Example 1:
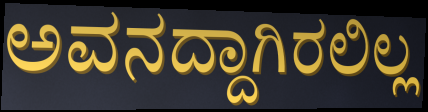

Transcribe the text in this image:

ಅವನದ್ದಾಗಿರಲಿಲ್ಲ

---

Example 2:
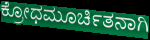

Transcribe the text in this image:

ಕ್ರೋಧಮೂರ್ಚಿತನಾಗಿ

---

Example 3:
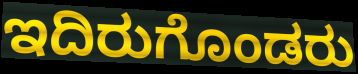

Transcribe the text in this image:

ಇದಿರುಗೊಂಡರು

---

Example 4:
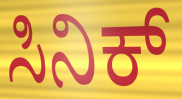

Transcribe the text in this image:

ಸಿನಿಕ್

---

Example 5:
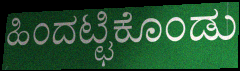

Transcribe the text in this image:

ಹಿಂದಟ್ಟಿಕೊಂಡು